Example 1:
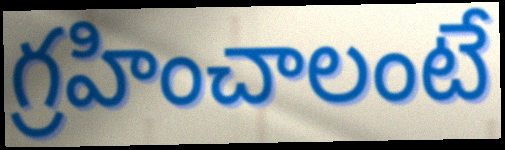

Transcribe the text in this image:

గ్రహించాలంటే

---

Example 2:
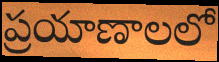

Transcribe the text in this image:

ప్రయాణాలలో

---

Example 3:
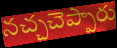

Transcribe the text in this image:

నచ్చచెప్పారు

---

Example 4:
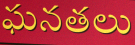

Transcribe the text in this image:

ఘనతలు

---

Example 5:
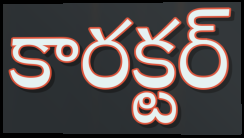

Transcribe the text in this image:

కారక్టర్